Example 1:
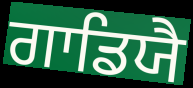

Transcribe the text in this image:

ਗਾਡਿਯੈ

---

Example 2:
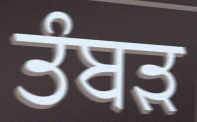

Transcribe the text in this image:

ਤੰਬੜ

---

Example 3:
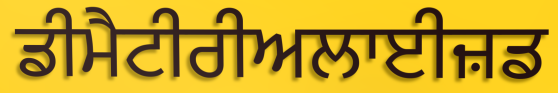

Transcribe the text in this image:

ਡੀਮੈਟੀਰੀਅਲਾਈਜ਼ਡ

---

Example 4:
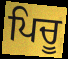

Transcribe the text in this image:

ਪਿਚੂ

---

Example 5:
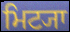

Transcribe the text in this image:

ਮਿਟ੍ਯਾ